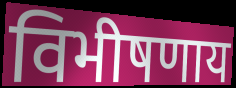
विभीषणाय